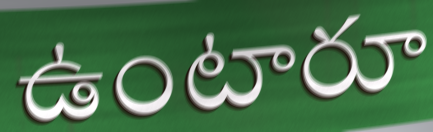
ఉంటారూ